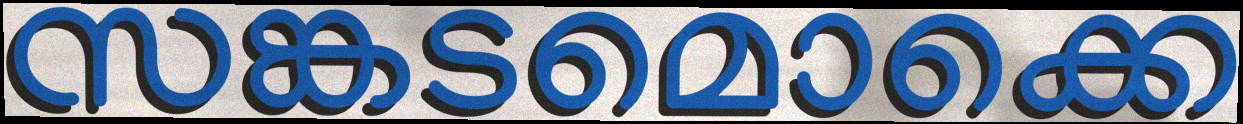
സങ്കടമൊക്കെ